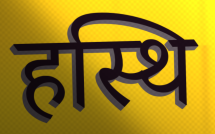
हस्थि